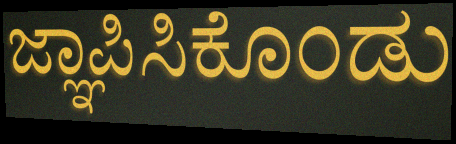
ಜ್ಞಾಪಿಸಿಕೊಂಡು